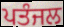
ਪਤੰਜਲ